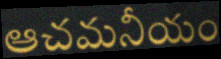
ఆచమనీయం